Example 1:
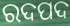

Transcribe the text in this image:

ରଦପଦ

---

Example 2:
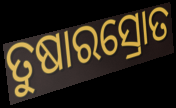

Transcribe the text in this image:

ତୁଷାରସ୍ରୋତ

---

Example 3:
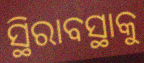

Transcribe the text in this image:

ସ୍ଥିରାବସ୍ଥାକୁ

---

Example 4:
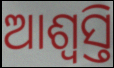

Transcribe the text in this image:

ଆଶ୍ଵସ୍ତି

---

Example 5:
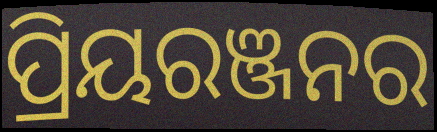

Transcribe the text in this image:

ପ୍ରିୟରଞ୍ଜନର